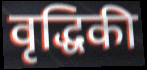
वृद्धिकी